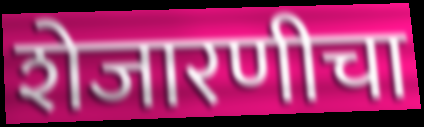
शेजारणीचा